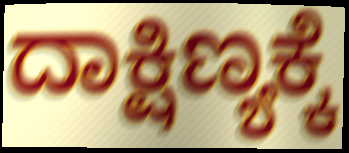
ದಾಕ್ಷಿಣ್ಯಕ್ಕೆ